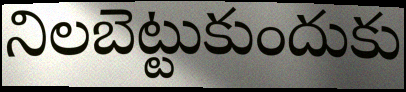
నిలబెట్టుకుందుకు